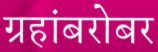
ग्रहांबरोबर